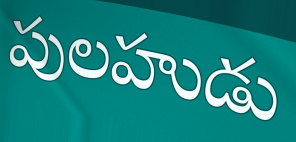
పులహుడు